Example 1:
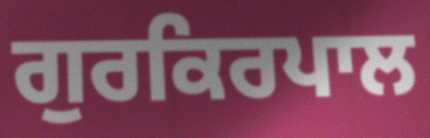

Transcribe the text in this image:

ਗੁਰਕਿਰਪਾਲ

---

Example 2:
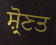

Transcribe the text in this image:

ਸ਼੍ਰੋਣਤ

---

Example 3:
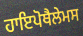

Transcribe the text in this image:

ਹਾਇਪੋਥੈਲੇਮਸ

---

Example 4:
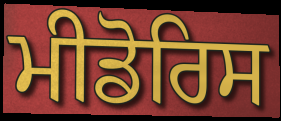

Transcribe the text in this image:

ਮੀਡੋਰਿਸ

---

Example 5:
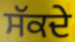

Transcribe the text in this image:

ਸੱਕਦੇ